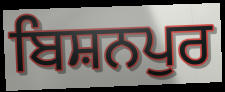
ਬਿਸ਼ਨਪੁਰ